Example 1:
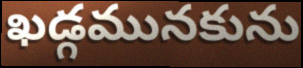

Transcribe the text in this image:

ఖడ్గమునకును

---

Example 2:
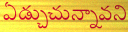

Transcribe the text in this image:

ఏడ్చుచున్నావని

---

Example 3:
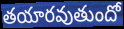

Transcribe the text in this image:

తయారవుతుందో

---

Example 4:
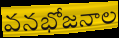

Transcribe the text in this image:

వనభోజనాల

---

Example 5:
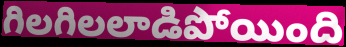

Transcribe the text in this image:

గిలగిలలాడిపోయింది